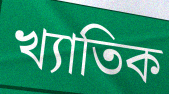
খ্যাতিক